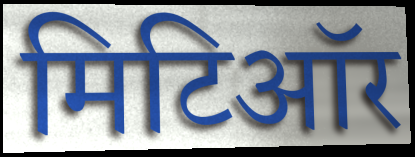
मिटिऑर